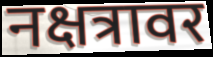
नक्षत्रावर